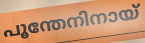
പൂന്തേനിനായ്